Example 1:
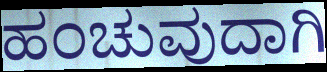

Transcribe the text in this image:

ಹಂಚುವುದಾಗಿ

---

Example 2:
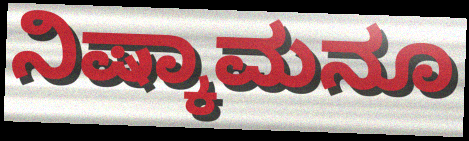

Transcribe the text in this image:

ನಿಷ್ಕಾಮನೂ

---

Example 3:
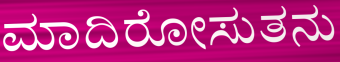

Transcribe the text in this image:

ಮಾದಿರೋಸುತನು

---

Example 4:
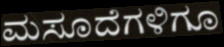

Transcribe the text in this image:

ಮಸೂದೆಗಳಿಗೂ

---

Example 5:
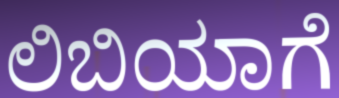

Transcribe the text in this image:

ಲಿಬಿಯಾಗೆ